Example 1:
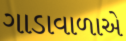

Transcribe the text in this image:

ગાડાવાળાએ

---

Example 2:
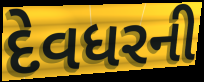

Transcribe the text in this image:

દેવધરની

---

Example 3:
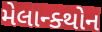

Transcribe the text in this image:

મેલાન્ક્થોન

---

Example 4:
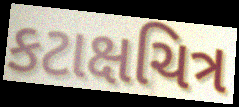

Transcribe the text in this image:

કટાક્ષચિત્ર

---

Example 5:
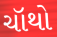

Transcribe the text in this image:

ચૉથો